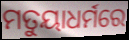
ମତୁୟାଧର୍ମରେ